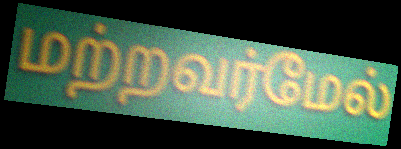
மற்றவர்மேல்